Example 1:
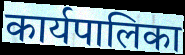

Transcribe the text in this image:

कार्यपालिका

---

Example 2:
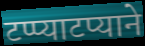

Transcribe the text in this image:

टप्प्याटप्याने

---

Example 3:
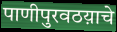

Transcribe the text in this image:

पाणीपुरवठय़ाचे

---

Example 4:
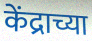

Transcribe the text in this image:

केंद्राच्या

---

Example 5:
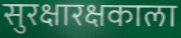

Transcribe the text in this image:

सुरक्षारक्षकाला